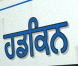
ਹਡਕਿਨ